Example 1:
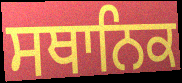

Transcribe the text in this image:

ਸਥਾਨਿਕ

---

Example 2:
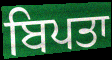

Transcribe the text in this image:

ਬਿਪਤਾ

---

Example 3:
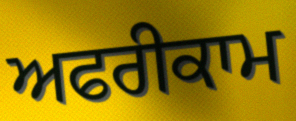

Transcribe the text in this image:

ਅਫਰੀਕਾਮ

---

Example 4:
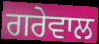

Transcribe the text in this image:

ਗਰੇਵਾਲ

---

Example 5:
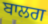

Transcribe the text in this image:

ਬਾਲਗ